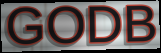
GODB